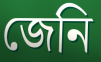
জেনি